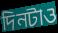
দিনটাও